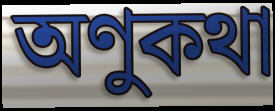
অণুকথা